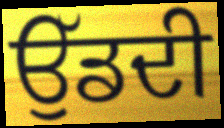
ਉੱਡਦੀ